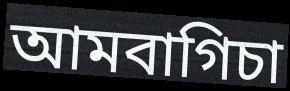
আমবাগিচা